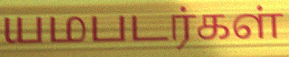
யமபடர்கள்